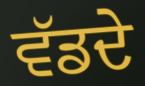
ਵੱਡਦੇ